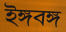
ইঙ্গবঙ্গ